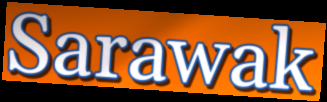
Sarawak